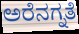
ಅರೆನಗ್ನತೆ